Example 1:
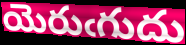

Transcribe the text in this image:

యెరుఁగుదు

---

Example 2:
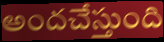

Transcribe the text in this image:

అందచేస్తుంది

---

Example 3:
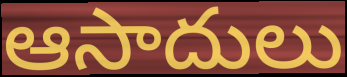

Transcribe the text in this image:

ఆసాదులు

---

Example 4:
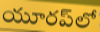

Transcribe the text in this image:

యూరప్‌లో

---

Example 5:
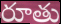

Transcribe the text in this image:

రూతు